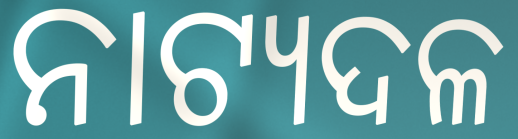
ନାଟ୍ୟଦଳ